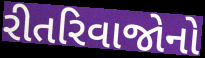
રીતરિવાજોનો